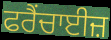
ਫਰੈਂਚਾਈਜ਼